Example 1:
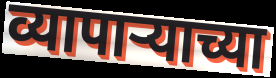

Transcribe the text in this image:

व्यापाऱ्याच्या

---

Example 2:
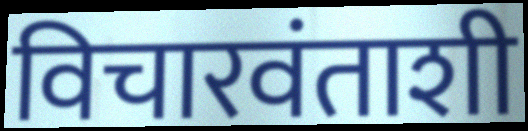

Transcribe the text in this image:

विचारवंताशी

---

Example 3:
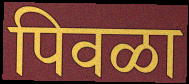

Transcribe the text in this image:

पिवळा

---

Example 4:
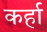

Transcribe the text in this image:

कर्हा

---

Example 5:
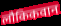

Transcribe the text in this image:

लौकिकवान